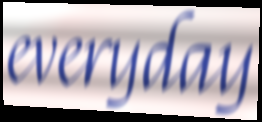
everyday